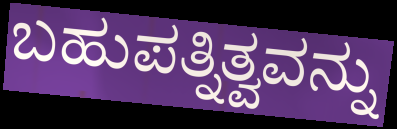
ಬಹುಪತ್ನಿತ್ವವನ್ನು